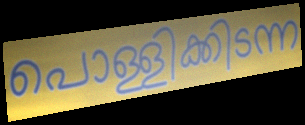
പൊള്ളിക്കിടന്ന